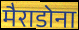
मैराडोना